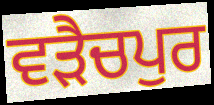
ਵੜੈਚਪੁਰ